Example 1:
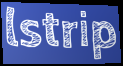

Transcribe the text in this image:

lstrip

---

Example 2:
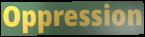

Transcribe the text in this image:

Oppression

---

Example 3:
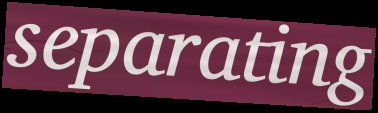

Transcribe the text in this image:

separating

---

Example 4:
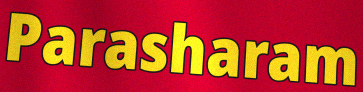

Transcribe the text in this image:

Parasharam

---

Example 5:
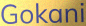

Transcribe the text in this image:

Gokani